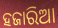
ହଜାରିଆ